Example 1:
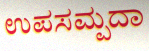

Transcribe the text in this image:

ಉಪಸಮ್ಪದಾ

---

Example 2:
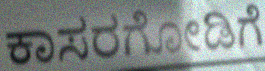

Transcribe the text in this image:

ಕಾಸರಗೋಡಿಗೆ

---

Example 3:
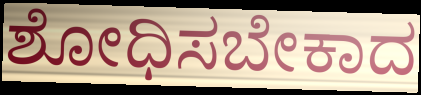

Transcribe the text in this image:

ಶೋಧಿಸಬೇಕಾದ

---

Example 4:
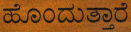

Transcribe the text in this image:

ಹೊಂದುತ್ತಾರೆ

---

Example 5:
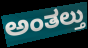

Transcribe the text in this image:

ಅಂತಲ್ತು